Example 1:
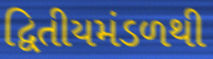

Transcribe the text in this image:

દ્વિતીયમંડળથી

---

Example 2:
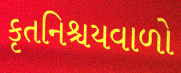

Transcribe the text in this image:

કૃતનિશ્ચયવાળો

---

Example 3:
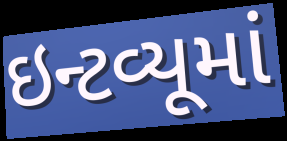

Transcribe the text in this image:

ઇન્ટવ્યૂમાં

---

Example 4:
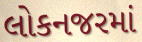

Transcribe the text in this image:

લોકનજરમાં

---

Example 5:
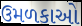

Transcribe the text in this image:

ઉમળકાઓ